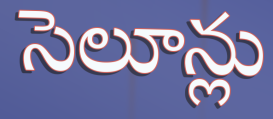
సెలూన్లు